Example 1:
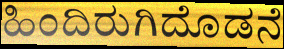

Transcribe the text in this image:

ಹಿಂದಿರುಗಿದೊಡನೆ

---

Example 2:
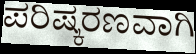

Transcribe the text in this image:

ಪರಿಷ್ಕರಣವಾಗಿ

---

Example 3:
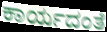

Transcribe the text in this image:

ಕಾರ್ಯದಂತೆ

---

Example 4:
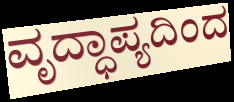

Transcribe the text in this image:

ವೃದ್ಧಾಪ್ಯದಿಂದ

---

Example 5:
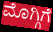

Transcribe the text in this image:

ಮೊಗ್ಗಿಗೆ